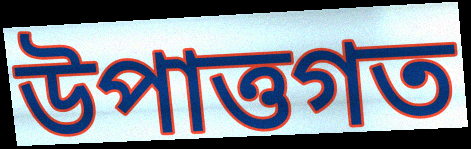
উপাত্তগত